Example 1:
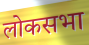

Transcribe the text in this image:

लोकसभा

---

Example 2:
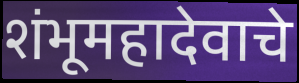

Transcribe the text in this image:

शंभूमहादेवाचे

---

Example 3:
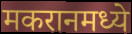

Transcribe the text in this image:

मकरानमध्ये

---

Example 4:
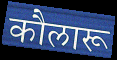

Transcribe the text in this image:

कौलारू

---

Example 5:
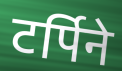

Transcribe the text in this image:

टर्पिने